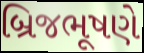
બ્રિજભૂષણે